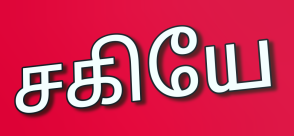
சகியே